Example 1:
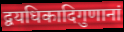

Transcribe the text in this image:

द्वयधिकादिगुणानां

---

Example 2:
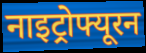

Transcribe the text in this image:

नाइट्रोफ्यूरन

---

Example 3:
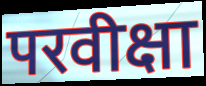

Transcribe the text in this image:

परवीक्षा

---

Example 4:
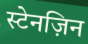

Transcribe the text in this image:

स्टेनज़िन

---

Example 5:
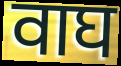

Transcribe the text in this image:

वाघ